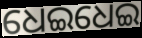
ଧେଇଧେଇ